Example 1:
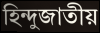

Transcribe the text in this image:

হিন্দুজাতীয়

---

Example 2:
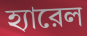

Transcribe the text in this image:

হ্যারেল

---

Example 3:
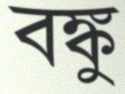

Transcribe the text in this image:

বঙ্কু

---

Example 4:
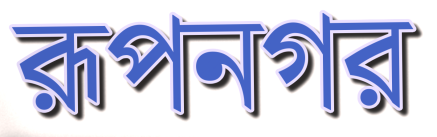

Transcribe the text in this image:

রূপনগর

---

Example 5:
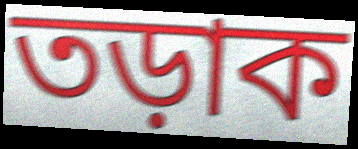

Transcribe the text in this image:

তড়াক